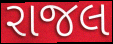
રાજલ